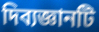
দিব্যজ্ঞানটি